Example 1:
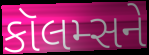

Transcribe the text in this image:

કૉલમ્સને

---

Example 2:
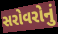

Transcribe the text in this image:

સરોવરોનું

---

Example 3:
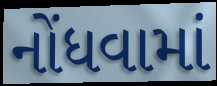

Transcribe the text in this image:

નોંધવામાં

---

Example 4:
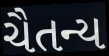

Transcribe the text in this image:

ચૈતન્ય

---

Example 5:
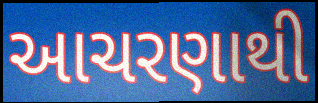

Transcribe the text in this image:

આચરણાથી